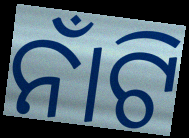
ନାଁଟି